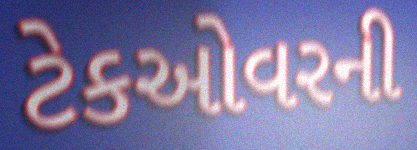
ટેકઓવરની